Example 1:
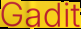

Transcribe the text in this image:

Gadit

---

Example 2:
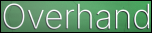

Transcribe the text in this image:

Overhand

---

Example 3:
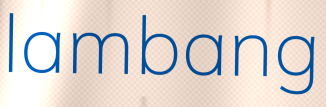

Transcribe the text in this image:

lambang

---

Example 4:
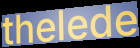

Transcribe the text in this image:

thelede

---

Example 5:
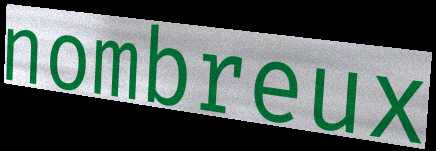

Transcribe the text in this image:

nombreux